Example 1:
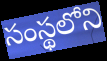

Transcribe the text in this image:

సంస్థలోని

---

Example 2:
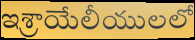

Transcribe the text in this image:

ఇశ్రాయేలీయులలో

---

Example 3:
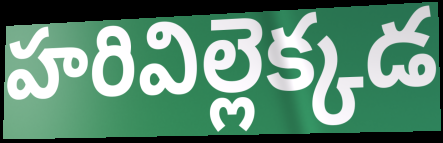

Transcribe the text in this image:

హరివిల్లెక్కడ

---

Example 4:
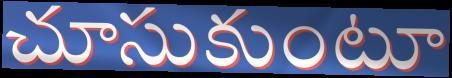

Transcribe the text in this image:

చూసుకుంటూ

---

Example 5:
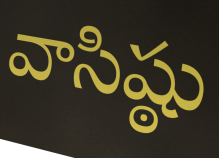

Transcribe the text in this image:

వాసిష్ఠు